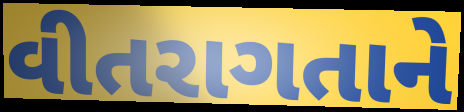
વીતરાગતાને